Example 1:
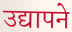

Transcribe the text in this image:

उद्यापने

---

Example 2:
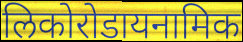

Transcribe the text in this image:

लिकोरोडायनामिक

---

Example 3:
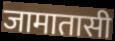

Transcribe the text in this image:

जामातासी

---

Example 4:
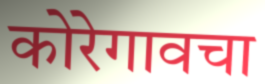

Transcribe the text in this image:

कोरेगावचा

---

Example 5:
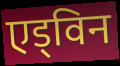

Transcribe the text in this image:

एड्विन